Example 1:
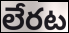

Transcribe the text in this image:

లేరట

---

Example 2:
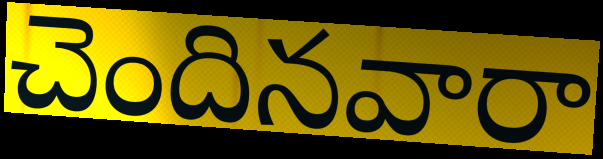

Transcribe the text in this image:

చెందినవారా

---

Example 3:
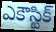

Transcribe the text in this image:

ఎకౌస్టిక్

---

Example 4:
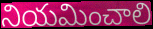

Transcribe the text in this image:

నియమించాలి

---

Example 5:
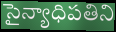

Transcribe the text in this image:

సైన్యాధిపతిని